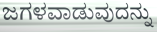
ಜಗಳವಾಡುವುದನ್ನು